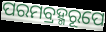
ପରମବ୍ରହ୍ମରୂପେ